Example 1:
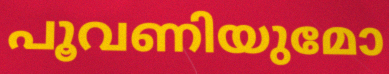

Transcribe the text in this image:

പൂവണിയുമോ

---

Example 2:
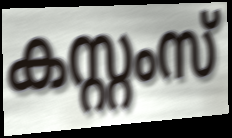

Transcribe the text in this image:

കസ്റ്റംസ്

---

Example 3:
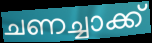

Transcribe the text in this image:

ചണച്ചാക്ക്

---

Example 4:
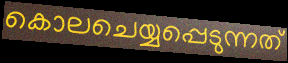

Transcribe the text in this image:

കൊലചെയ്യപ്പെടുന്നത്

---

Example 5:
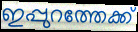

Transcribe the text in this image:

ഇപ്പുറത്തേക്ക്